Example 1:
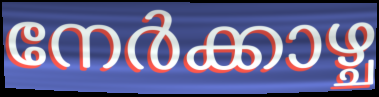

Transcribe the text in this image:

നേർക്കാഴ്ച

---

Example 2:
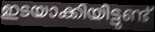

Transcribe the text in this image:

ഇടയാക്കിയിട്ടുണ്ട്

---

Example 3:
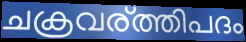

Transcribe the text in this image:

ചക്രവര്ത്തിപദം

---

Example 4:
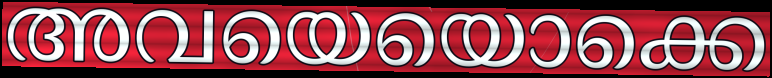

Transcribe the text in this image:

അവയെയൊക്കെ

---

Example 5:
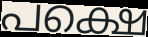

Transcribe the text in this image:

പക്ഷെ